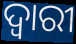
ଦ୍ଵାରୀ